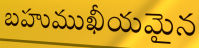
బహుముఖీయమైన